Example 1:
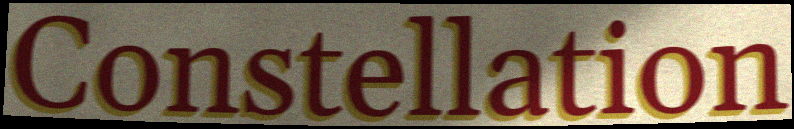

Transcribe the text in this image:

Constellation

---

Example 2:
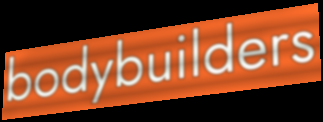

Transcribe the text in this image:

bodybuilders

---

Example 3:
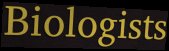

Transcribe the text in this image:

Biologists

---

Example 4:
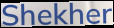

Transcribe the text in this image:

Shekher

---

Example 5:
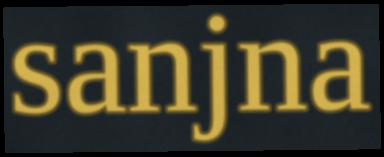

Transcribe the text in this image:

sanjna